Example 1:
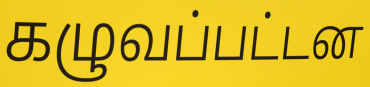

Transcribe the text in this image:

கழுவப்பட்டன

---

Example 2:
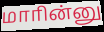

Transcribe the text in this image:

மாரின்னு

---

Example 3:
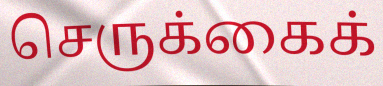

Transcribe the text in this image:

செருக்கைக்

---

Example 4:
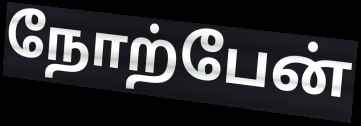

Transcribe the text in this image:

நோற்பேன்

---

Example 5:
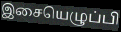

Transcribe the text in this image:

இசையெழுப்பி